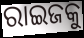
ରାଇଜକୁ